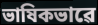
ভাষিকভাৱে